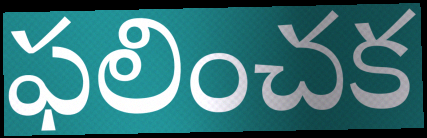
ఫలించక